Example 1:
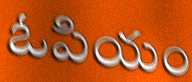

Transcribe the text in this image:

ఓపియం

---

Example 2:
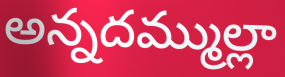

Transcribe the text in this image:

అన్నదమ్ముల్లా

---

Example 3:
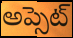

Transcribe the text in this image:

అప్సెట్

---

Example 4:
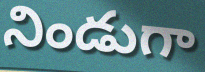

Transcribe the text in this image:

నిండుగా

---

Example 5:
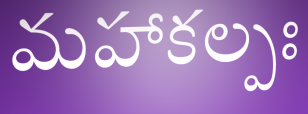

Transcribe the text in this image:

మహాకల్పః